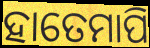
ହାତେମାପି